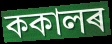
ককালৰ